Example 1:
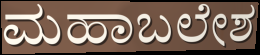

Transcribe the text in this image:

ಮಹಾಬಲೇಶ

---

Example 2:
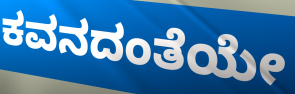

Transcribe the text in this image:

ಕವನದಂತೆಯೇ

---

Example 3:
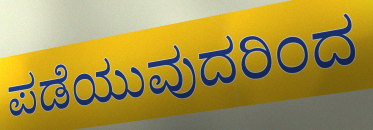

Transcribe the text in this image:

ಪಡೆಯುವುದರಿಂದ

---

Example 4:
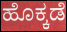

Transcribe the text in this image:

ಹೊಕ್ಕಡೆ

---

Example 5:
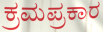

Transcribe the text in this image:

ಕ್ರಮಪ್ರಕಾರ